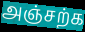
அஞ்சற்க